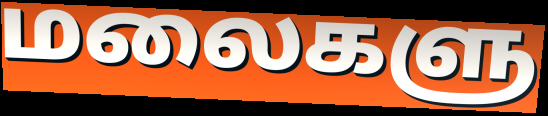
மலைகளு